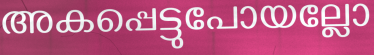
അകപ്പെട്ടുപോയല്ലോ